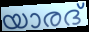
യാരദ്